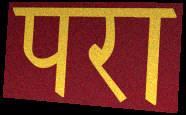
परा